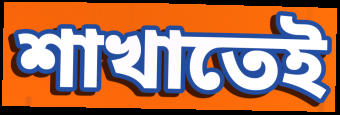
শাখাতেই